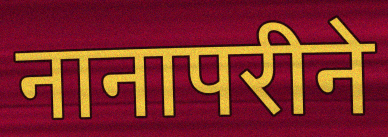
नानापरीने